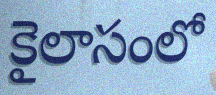
కైలాసంలో